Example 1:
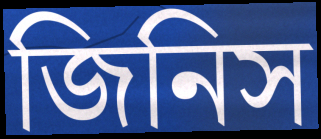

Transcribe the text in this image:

জিনিস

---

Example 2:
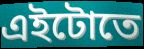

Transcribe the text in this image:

এইটোতে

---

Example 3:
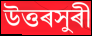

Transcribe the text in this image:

উত্তৰসুৰী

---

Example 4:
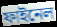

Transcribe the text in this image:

ফাইনেল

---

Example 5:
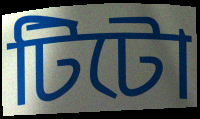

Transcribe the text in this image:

টিটো